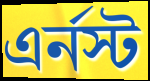
এর্নস্ট